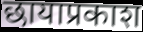
छायाप्रकाश